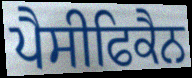
ਪੈਸੀਫਿਕੈਨ